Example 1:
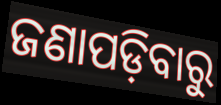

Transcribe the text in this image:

ଜଣାପଡ଼ିବାରୁ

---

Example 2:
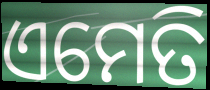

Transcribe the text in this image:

ଏମେତି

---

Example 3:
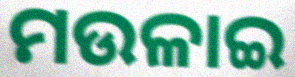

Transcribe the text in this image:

ମଉଳାଇ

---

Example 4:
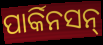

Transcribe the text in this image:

ପାର୍କିନସନ୍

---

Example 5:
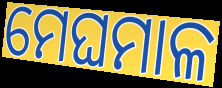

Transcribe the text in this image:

ମେଘମାଳ